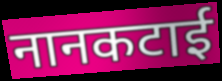
नानकटाई